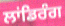
ਲਾਂਡਿਰੰਗ